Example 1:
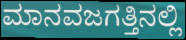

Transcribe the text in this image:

ಮಾನವಜಗತ್ತಿನಲ್ಲಿ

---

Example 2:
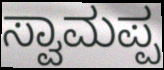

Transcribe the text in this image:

ಸ್ವಾಮಪ್ಪ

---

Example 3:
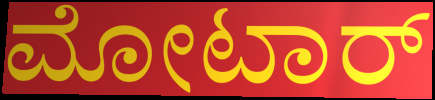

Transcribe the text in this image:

ಮೋಟಾರ್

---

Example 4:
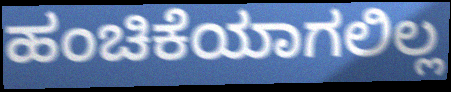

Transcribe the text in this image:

ಹಂಚಿಕೆಯಾಗಲಿಲ್ಲ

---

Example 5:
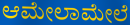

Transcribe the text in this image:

ಆಮೇಲಾಮೇಲೆ